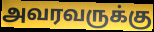
அவரவருக்கு